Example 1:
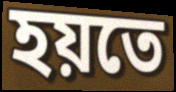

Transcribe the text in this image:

হয়তে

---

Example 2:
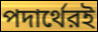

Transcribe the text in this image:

পদার্থেরই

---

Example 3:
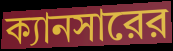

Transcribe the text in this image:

ক্যানসারের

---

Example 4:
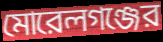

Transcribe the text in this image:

মোরেলগঞ্জের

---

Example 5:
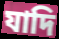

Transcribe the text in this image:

যাদি